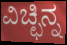
ವಿಚ್ಛಿನ್ನ